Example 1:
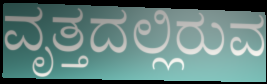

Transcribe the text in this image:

ವೃತ್ತದಲ್ಲಿರುವ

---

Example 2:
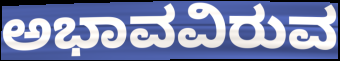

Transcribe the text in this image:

ಅಭಾವವಿರುವ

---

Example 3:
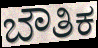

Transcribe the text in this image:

ಬೌತಿಕ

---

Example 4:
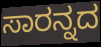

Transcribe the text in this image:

ಸಾರನ್ನದ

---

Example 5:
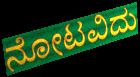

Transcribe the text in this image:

ನೋಟವಿದು